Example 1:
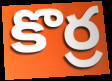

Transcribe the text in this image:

కొర్ర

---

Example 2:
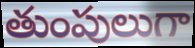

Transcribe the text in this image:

తుంపులుగా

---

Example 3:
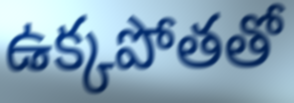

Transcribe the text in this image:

ఉక్కపోతతో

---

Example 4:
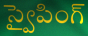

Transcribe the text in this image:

స్వైపింగ్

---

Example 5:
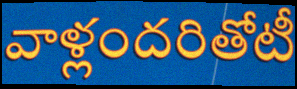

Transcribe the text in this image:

వాళ్లందరితోటీ